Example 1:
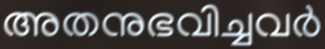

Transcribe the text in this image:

അതനുഭവിച്ചവർ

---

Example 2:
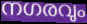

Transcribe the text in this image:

നഗരവും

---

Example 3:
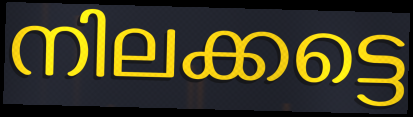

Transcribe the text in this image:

നിലക്കട്ടെ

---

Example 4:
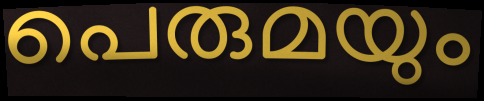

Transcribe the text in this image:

പെരുമയും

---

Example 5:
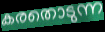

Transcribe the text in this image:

കരതൊടുന്ന